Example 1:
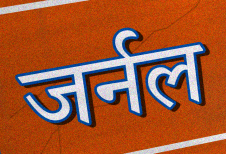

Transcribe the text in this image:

जर्नल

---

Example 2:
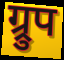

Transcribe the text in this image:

ग्र्रुप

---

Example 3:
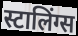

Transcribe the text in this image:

स्टालिंग्स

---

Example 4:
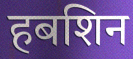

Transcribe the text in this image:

हबशिन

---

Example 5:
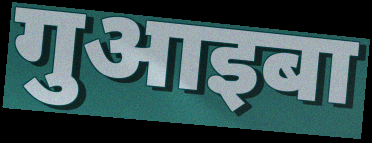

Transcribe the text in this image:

गुआइबा